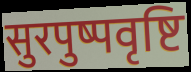
सुरपुष्पवृष्टि